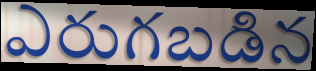
ఎరుగబడిన